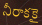
నీరాకకై